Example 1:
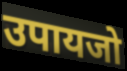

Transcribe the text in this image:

उपायजो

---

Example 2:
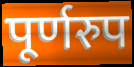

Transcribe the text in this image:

पूर्णरुप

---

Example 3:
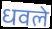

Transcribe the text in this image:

धवले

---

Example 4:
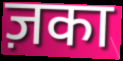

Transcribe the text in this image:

ज़का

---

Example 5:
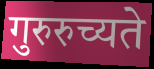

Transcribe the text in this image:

गुरुरुच्यते